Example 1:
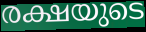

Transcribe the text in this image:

രക്ഷയുടെ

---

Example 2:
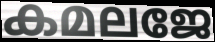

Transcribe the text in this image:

കമലജേ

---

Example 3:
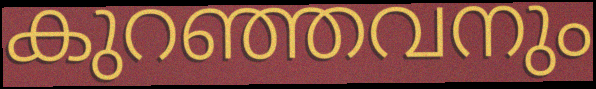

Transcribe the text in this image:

കുറഞ്ഞവനും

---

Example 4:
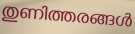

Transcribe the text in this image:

തുണിത്തരങ്ങൾ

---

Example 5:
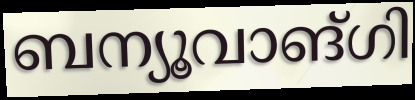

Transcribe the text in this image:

ബന്യൂവാങ്ഗി